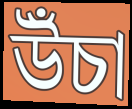
উঁচা